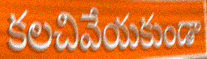
కలచివేయకుండా